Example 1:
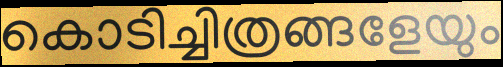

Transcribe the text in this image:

കൊടിച്ചിത്രങ്ങളേയും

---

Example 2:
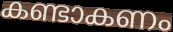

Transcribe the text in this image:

കണ്ടാകണം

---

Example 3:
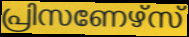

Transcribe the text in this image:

പ്രിസണേഴ്സ്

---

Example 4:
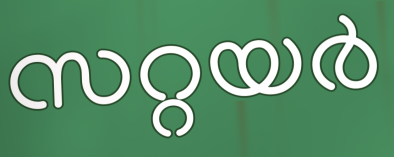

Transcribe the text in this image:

സറ്റയർ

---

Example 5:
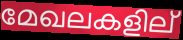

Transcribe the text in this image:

മേഖലകളില്